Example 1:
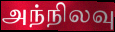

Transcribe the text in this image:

அந்நிலவு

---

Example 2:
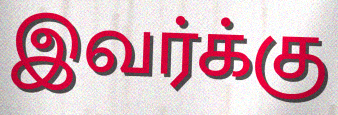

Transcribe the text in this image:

இவர்க்கு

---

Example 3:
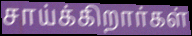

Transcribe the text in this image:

சாய்க்கிறார்கள்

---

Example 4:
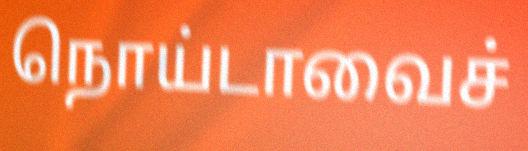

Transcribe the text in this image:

நொய்டாவைச்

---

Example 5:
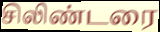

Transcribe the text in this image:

சிலிண்டரை